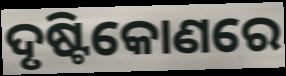
ଦୃଷ୍ଟିକୋଣରେ